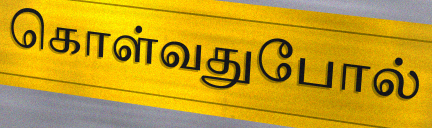
கொள்வதுபோல்